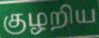
குழறிய